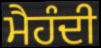
ਮੈਹੰਦੀ